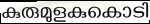
കുരുമുളകുകൊടി